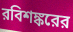
রবিশঙ্করের